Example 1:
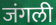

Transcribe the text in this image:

जंगली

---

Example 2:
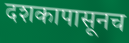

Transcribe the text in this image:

दशकापासूनच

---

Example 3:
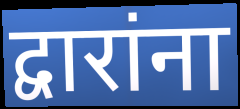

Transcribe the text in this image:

द्वारांना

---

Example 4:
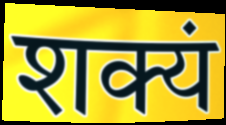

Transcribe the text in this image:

शक्यं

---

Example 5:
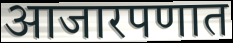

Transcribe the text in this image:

आजारपणात